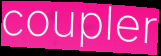
coupler